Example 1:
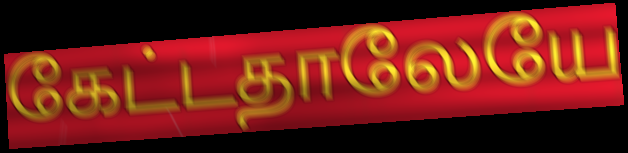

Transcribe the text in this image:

கேட்டதாலேயே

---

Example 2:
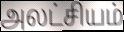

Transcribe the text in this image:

அலட்சியம்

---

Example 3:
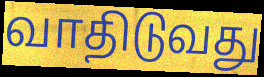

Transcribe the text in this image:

வாதிடுவது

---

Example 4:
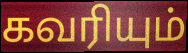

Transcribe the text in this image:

கவரியும்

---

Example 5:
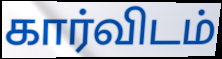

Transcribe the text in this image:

கார்விடம்